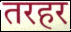
तरहर